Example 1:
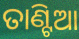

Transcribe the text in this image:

ତାଣ୍ଟିଆ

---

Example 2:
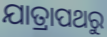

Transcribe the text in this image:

ଯାତ୍ରାପଥରୁ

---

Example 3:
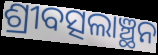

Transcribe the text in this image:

ଶ୍ରୀବତ୍ସଲାଞ୍ଛନ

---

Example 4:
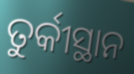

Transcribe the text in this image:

ତୁର୍କୀସ୍ଥାନ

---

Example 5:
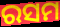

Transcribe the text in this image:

ରସମ